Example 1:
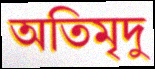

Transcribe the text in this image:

অতিমৃদু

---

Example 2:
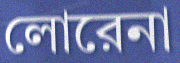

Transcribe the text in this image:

লোরেনা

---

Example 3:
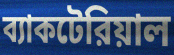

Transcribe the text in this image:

ব্যাকটেরিয়াল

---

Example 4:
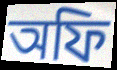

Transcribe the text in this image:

অফি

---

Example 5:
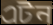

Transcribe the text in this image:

এটন